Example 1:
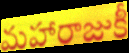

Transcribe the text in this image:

మహారాజుకీ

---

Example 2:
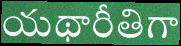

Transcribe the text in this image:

యథారీతిగా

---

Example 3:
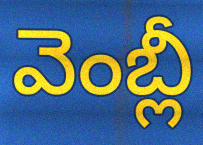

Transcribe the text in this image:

వెంబ్లీ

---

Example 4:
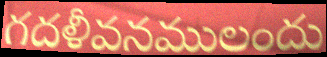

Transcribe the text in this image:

గదళీవనములందు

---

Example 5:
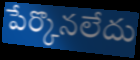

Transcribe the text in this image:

పేర్కొనలేదు